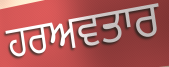
ਹਰਅਵਤਾਰ